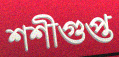
শশীগুপ্ত